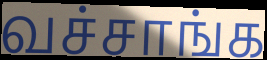
வச்சாங்க